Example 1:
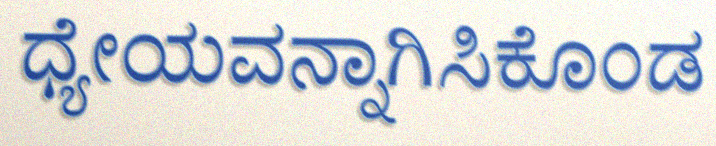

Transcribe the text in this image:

ಧ್ಯೇಯವನ್ನಾಗಿಸಿಕೊಂಡ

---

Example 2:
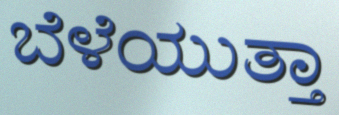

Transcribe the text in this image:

ಬೆಳೆಯುತ್ತಾ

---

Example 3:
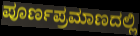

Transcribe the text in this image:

ಪೂರ್ಣಪ್ರಮಾಣದಲ್ಲಿ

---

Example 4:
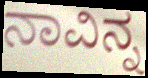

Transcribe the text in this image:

ನಾವಿನ್ನ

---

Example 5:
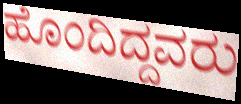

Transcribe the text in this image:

ಹೊಂದಿದ್ದವರು